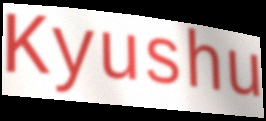
Kyushu